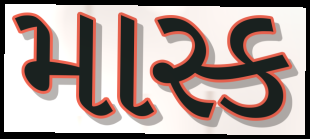
માસ્ક